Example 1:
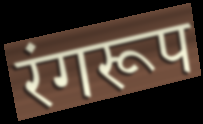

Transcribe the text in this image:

रंगरूप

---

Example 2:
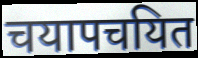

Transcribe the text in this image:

चयापचयित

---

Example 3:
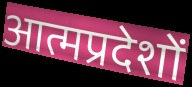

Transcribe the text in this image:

आत्मप्रदेशों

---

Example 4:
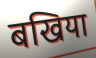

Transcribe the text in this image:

बखिया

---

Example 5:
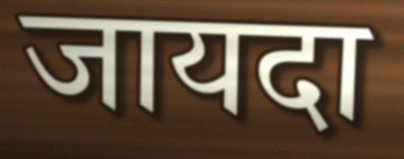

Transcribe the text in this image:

जायदा